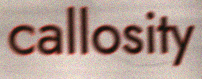
callosity